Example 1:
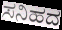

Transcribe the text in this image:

ಸನಿಹದ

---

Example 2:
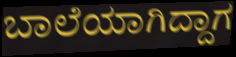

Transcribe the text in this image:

ಬಾಲೆಯಾಗಿದ್ದಾಗ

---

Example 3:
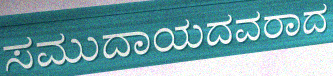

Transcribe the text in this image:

ಸಮುದಾಯದವರಾದ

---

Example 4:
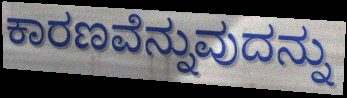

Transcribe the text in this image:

ಕಾರಣವೆನ್ನುವುದನ್ನು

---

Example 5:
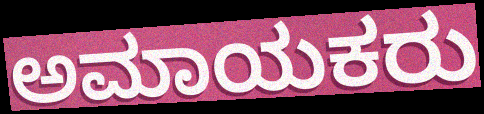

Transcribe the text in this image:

ಅಮಾಯಕರು